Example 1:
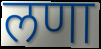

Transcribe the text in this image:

लणा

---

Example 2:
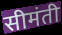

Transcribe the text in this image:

सीमंती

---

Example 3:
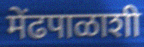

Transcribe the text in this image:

मेंढपाळाशी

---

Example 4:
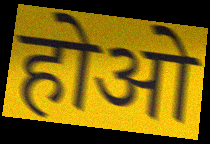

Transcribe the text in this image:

होओ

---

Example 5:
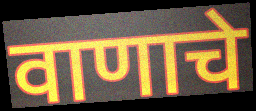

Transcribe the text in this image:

वाणाचे